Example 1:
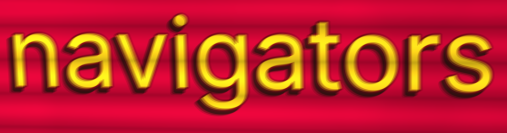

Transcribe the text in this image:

navigators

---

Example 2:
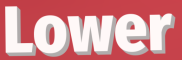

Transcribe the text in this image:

Lower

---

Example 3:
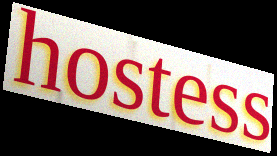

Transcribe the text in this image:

hostess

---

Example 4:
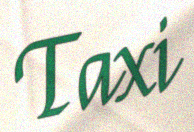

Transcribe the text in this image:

Taxi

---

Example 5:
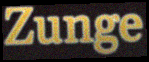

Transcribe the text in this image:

Zunge